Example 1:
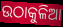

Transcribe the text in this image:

ଉଠାକୁଳିଆ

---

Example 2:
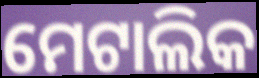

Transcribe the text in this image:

ମେଟାଲିକ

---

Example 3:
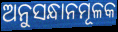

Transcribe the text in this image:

ଅନୁସନ୍ଧାନମୂଳକ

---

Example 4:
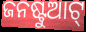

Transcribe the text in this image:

ଜନଷ୍ଟୁଆଟ୍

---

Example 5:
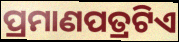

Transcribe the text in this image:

ପ୍ରମାଣପତ୍ରଟିଏ